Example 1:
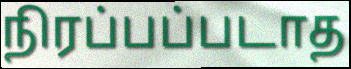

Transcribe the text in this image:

நிரப்பப்படாத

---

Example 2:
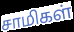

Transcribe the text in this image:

சாமிகள்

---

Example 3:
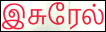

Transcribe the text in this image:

இசுரேல்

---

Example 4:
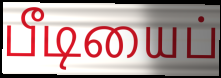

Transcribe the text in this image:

பீடியைப்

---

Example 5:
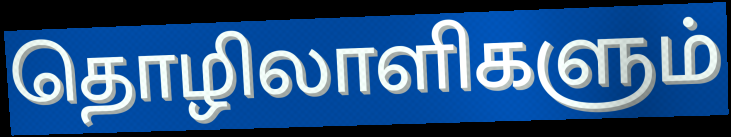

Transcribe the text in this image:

தொழிலாளிகளும்